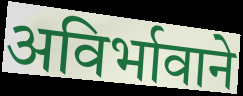
अविर्भावाने